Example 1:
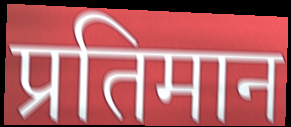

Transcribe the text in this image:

प्रतिमान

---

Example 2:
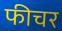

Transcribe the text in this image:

फीचर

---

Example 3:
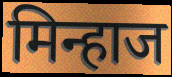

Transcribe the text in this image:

मिन्हाज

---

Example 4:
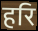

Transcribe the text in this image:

हरि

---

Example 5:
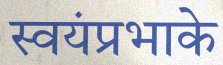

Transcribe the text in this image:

स्वयंप्रभाके